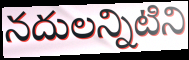
నదులన్నిటిని